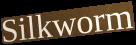
Silkworm